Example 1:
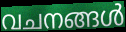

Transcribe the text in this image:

വചനങ്ങൾ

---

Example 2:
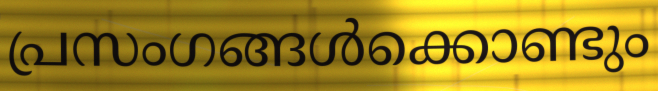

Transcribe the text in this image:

പ്രസംഗങ്ങൾക്കൊണ്ടും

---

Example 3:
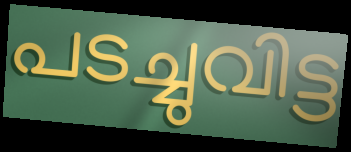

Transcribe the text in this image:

പടച്ചുവിട്ട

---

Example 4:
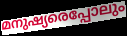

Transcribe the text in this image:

മനുഷ്യരെപ്പോലും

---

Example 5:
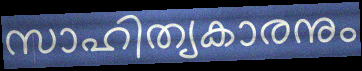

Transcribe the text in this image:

സാഹിത്യകാരനും